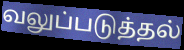
வலுப்படுத்தல்